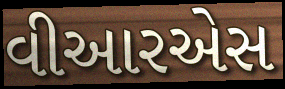
વીઆરએસ